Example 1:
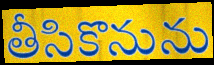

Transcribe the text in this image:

తీసికొనును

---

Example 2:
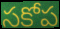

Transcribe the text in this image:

సకోప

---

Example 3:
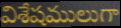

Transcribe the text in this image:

విశేషములుగా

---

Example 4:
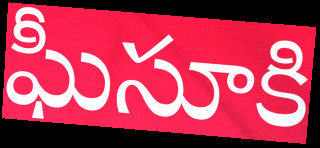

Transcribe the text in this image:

ఘీసూకి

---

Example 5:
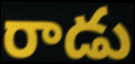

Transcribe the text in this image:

రాడు